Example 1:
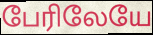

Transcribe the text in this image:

பேரிலேயே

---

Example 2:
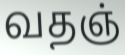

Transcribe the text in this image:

வதஞ்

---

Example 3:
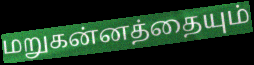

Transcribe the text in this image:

மறுகன்னத்தையும்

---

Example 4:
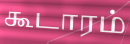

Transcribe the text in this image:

கூடாரம்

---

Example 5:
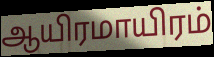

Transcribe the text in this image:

ஆயிரமாயிரம்